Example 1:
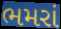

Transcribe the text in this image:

ભમરાં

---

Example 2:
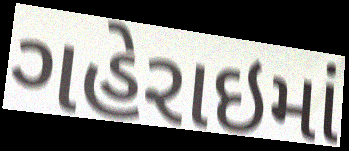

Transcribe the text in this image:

ગહેરાઇમાં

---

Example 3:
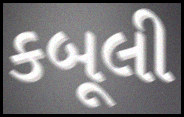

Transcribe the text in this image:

કબૂલી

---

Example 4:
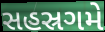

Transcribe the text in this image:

સહસ્રગમે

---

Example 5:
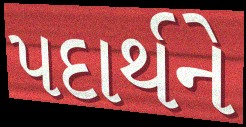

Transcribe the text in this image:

પદાર્થને